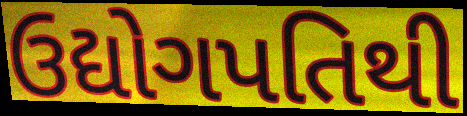
ઉદ્યોગપતિથી